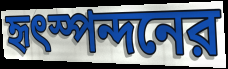
হৃৎস্পন্দনের